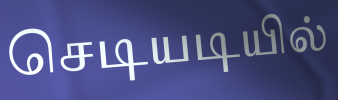
செடியடியில்